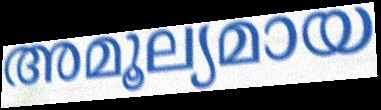
അമൂല്യമായ